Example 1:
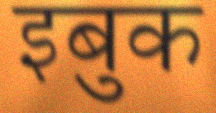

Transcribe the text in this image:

इबुक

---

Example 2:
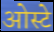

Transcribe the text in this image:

ओस्टे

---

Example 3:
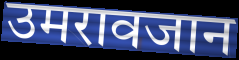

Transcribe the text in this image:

उमरावजान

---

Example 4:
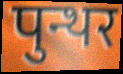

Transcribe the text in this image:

पुन्थर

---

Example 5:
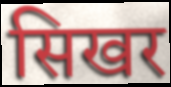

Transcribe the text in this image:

सिखर